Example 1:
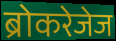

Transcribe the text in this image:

ब्रोकरेजेज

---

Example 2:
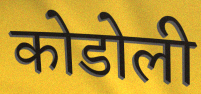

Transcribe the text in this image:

कोडोली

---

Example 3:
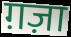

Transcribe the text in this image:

ग़ज़ा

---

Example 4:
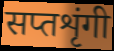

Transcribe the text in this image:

सप्तशृंगी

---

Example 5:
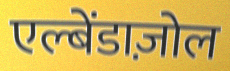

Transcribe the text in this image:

एल्बेंडाज़ोल